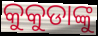
କୁକୁଡାଙ୍କୁ